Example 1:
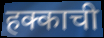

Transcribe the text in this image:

हक्काची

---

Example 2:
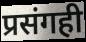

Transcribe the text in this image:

प्रसंगही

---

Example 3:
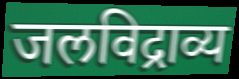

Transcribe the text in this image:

जलविद्राव्य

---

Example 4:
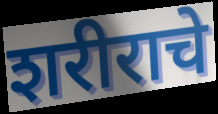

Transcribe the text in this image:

शरीराचे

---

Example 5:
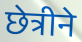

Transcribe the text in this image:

छेत्रीने